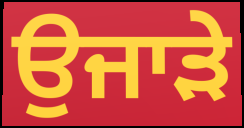
ਉਜਾੜੇ